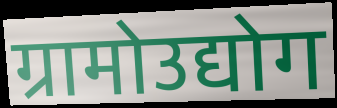
ग्रामोउद्योग